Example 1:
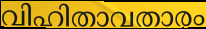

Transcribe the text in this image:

വിഹിതാവതാരം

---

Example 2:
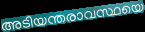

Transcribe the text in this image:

അടിയന്തരാവസ്ഥയെ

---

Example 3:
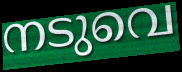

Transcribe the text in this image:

നടുവെ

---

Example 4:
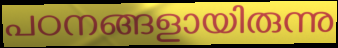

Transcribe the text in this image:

പഠനങ്ങളായിരുന്നു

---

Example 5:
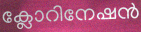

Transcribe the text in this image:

ക്ലോറിനേഷൻ